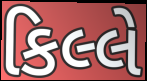
કિલ્લે